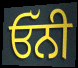
ਓੱਨੀ